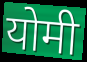
योमी